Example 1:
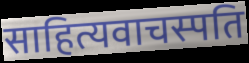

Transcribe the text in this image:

साहित्यवाचस्पति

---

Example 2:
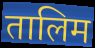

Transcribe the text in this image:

तालिम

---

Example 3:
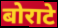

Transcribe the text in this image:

बोराटे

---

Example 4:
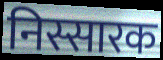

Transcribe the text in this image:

निस्सारक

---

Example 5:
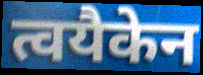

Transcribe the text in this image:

त्वयैकेन